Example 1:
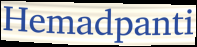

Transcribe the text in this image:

Hemadpanti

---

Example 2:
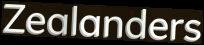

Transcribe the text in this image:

Zealanders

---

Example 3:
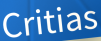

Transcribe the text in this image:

Critias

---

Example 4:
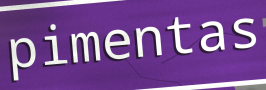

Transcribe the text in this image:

pimentas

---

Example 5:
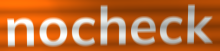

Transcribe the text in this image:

nocheck